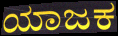
ಯಾಜಕ